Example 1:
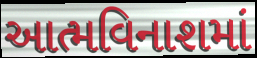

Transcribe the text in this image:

આત્મવિનાશમાં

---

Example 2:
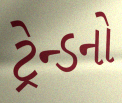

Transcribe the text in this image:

ટ્રેન્ડનો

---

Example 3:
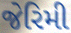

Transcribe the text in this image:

જેરિમી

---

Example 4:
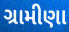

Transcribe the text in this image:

ગ્રામીણા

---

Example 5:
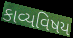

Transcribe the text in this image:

કાવ્યવિષય